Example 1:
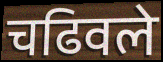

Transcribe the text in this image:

चढिवले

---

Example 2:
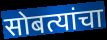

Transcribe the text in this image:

सोबत्यांचा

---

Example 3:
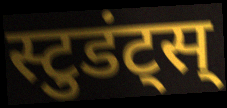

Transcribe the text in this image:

स्टुडंट्स्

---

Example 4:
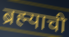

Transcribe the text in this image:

ब्रह्म्याची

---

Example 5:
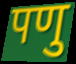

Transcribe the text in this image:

पणु